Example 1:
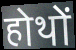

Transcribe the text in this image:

होथों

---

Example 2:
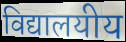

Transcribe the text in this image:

विद्यालयीय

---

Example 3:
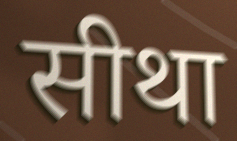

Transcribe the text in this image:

सीथा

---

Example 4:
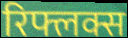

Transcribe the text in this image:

रिफ्लक्स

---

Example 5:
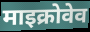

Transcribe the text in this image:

माइक्रोवेव